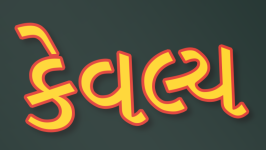
કેવલ્ય